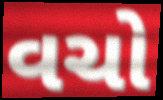
વચો